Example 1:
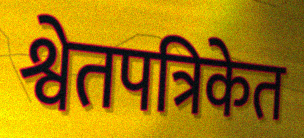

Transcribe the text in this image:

श्वेतपत्रिकेत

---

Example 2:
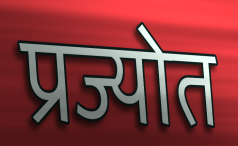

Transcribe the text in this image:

प्रज्योत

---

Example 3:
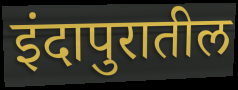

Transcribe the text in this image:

इंदापुरातील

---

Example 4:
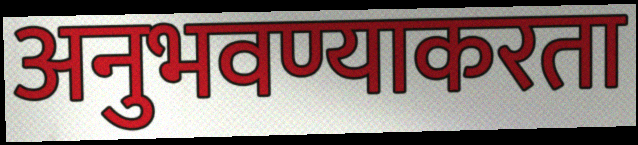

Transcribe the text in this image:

अनुभवण्याकरता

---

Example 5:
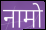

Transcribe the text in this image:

नामो